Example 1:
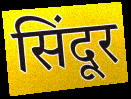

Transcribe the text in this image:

सिंदूर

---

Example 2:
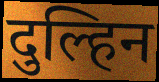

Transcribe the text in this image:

दुल्हिन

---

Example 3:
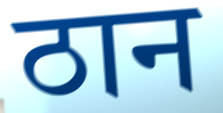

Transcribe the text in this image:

ठान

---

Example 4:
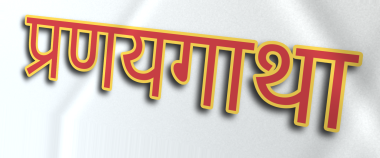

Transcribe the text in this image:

प्रणयगाथा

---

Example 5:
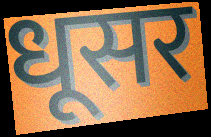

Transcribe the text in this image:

धूसर